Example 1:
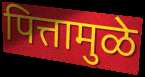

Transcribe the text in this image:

पित्तामुळे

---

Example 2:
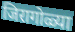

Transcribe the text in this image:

जिरागोळ्या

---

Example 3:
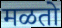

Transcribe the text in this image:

मळतो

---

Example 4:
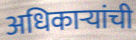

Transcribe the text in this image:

अधिकार्‍यांची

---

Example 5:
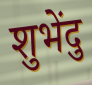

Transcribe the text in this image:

शुभेंदु